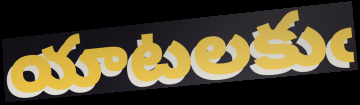
యాటలకుఁ